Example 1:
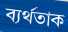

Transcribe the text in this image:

ব্যৰ্থতাক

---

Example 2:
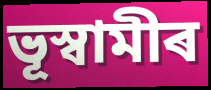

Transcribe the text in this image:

ভূস্বামীৰ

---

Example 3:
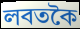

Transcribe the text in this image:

লবতকৈ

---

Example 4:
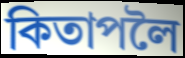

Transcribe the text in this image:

কিতাপলৈ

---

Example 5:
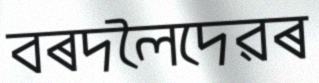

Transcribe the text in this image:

বৰদলৈদেৱৰ